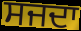
ਸਜਦਾ